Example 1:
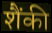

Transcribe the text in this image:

शैंकी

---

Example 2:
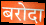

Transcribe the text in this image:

बरोदा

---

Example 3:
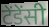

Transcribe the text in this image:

टेंडेंसी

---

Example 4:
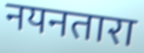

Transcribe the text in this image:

नयनतारा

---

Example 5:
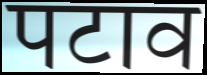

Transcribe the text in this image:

पटाव